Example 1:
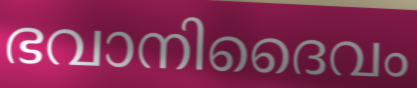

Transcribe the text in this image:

ഭവാനിദൈവം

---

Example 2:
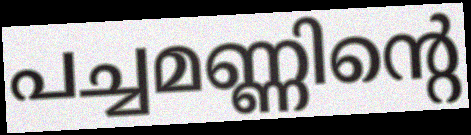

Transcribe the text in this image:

പച്ചമണ്ണിന്റെ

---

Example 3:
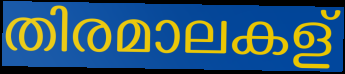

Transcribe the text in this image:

തിരമാലകള്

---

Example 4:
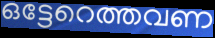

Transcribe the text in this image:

ഒട്ടേറെത്തവണ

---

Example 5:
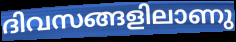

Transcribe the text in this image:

ദിവസങ്ങളിലാണു